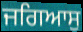
ਜਗਿਆਸੁ